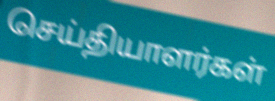
செய்தியாளர்கள்